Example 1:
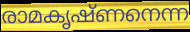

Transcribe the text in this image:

രാമകൃഷ്ണനെന്ന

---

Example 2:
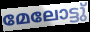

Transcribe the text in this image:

മേലോട്ടു്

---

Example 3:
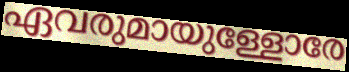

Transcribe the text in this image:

ഏവരുമായുള്ളോരേ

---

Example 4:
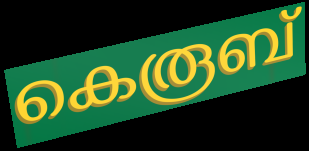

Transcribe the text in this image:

കെരൂബ്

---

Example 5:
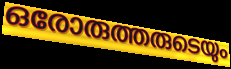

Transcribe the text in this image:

ഒരോരുത്തരുടെയും